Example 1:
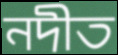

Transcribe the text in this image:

নদীত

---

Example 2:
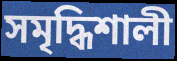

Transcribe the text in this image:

সমৃদ্ধিশালী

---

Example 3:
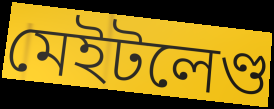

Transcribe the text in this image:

মেইটলেণ্ড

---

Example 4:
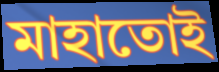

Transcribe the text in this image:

মাহাতোই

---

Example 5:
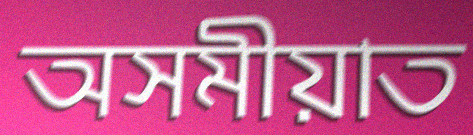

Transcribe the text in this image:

অসমীয়াত